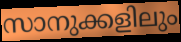
സാനുക്കളിലും